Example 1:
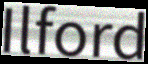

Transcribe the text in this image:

Ilford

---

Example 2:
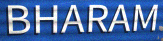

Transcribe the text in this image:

BHARAM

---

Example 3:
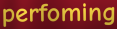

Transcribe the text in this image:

perfoming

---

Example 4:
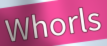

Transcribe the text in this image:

Whorls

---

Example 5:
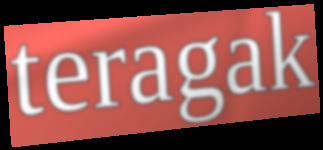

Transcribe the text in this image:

teragak